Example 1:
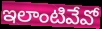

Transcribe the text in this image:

ఇలాంటివేవో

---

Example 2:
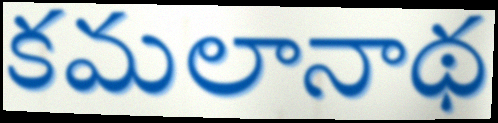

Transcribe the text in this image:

కమలానాథ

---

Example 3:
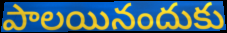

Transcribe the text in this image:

పాలయినందుకు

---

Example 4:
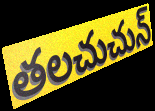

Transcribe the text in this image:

తలచుచున్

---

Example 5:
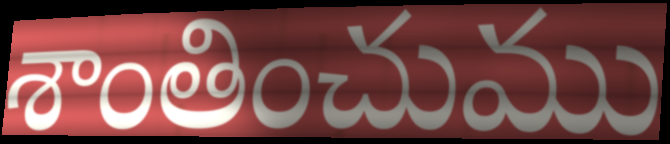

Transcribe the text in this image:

శాంతించుము